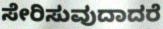
ಸೇರಿಸುವುದಾದರೆ